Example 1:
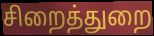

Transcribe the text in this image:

சிறைத்துறை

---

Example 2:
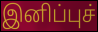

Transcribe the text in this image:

இனிப்புச்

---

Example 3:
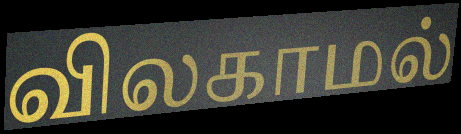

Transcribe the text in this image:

விலகாமல்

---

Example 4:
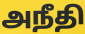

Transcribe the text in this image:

அநீதி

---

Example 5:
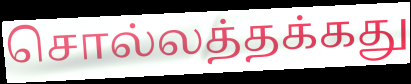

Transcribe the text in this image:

சொல்லத்தக்கது